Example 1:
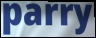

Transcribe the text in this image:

parry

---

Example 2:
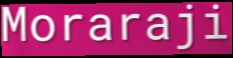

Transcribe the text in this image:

Moraraji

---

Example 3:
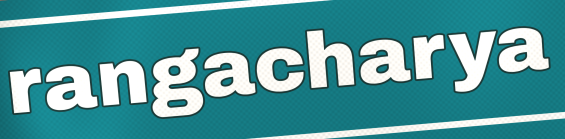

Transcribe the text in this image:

rangacharya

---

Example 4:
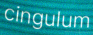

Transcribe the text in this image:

cingulum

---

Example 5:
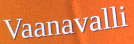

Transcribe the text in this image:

Vaanavalli